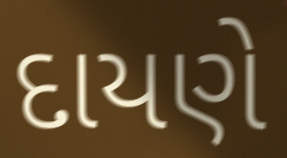
દાયણે